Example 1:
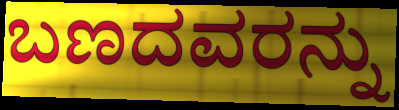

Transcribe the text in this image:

ಬಣದವರನ್ನು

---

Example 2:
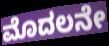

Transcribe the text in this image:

ಮೊದಲನೇ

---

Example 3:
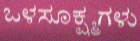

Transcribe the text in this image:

ಒಳಸೂಕ್ಷ್ಮಗಳು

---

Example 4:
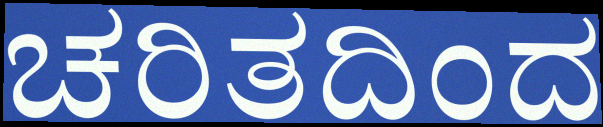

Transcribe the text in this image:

ಚರಿತದಿಂದ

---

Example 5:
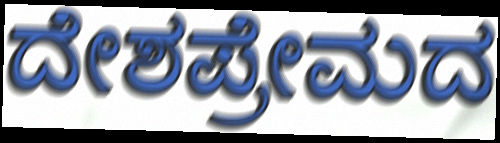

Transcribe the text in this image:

ದೇಶಪ್ರೇಮದ